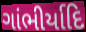
ગાંભીર્યાદિ